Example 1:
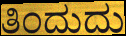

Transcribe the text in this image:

ತಿಂದುದು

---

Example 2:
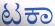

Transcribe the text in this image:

ಟಕಾ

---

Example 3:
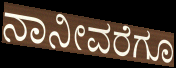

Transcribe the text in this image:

ನಾನೀವರೆಗೂ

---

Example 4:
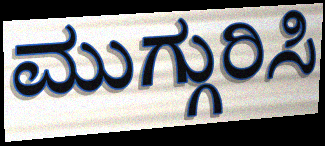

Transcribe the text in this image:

ಮುಗ್ಗುರಿಸಿ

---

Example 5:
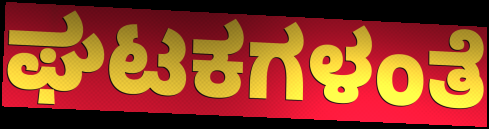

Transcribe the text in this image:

ಘಟಕಗಳಂತೆ